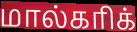
மால்கரிக்